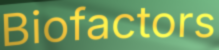
Biofactors